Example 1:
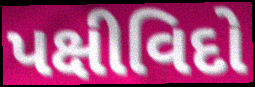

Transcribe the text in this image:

પક્ષીવિદો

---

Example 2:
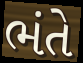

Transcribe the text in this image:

ભંતે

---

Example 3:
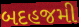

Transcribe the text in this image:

બદહજમી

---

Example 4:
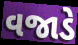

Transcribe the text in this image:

વજાડે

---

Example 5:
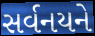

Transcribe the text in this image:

સર્વનયને